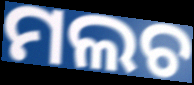
ମଲଚ